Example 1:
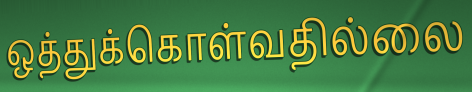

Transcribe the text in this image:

ஒத்துக்கொள்வதில்லை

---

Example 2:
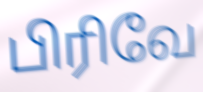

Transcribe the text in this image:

பிரிவே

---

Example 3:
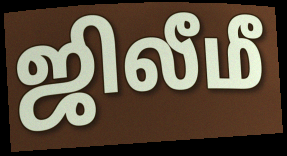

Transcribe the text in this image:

ஜிலீமீ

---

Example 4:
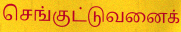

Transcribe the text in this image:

செங்குட்டுவனைக்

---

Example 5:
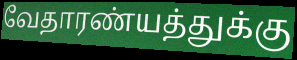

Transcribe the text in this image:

வேதாரண்யத்துக்கு